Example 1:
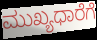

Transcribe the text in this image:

ಮುಖ್ಯಧಾರೆಗೆ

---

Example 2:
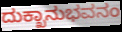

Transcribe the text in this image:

ದುಕ್ಖಾನುಭವನಂ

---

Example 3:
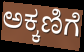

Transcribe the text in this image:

ಅಕ್ಕಣಿಗೆ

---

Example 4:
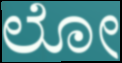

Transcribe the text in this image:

ಲೋ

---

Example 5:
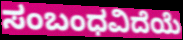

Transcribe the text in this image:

ಸಂಬಂಧವಿದೆಯೆ